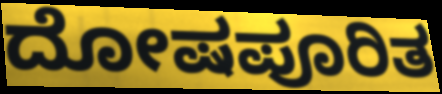
ದೋಷಪೂರಿತ